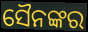
ସୈନଙ୍କର